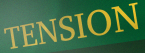
TENSION